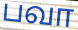
பவா